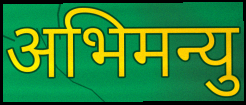
अभिमन्यु